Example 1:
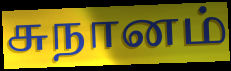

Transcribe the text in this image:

சுநானம்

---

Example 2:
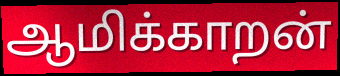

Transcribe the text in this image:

ஆமிக்காறன்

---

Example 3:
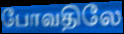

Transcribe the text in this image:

போவதிலே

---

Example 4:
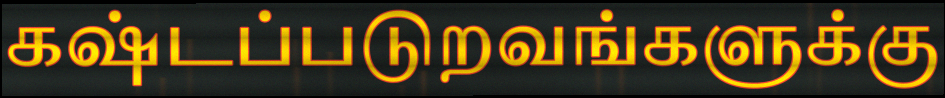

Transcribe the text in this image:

கஷ்டப்படுறவங்களுக்கு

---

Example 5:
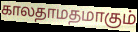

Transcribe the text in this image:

காலதாமதமாகும்